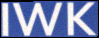
IWK